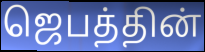
ஜெபத்தின்